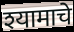
श्यामाचे